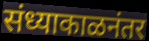
संध्याकाळनंतर